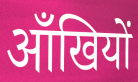
आँखियों